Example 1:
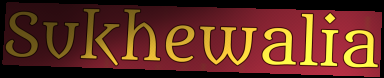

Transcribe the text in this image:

Sukhewalia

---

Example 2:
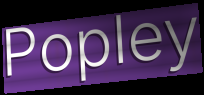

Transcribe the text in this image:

Popley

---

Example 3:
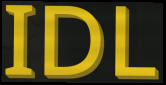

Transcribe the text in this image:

IDL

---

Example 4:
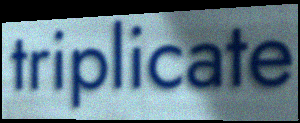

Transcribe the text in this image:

triplicate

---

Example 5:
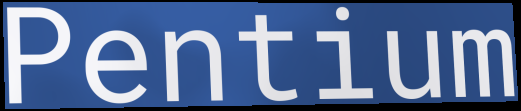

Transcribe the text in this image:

Pentium